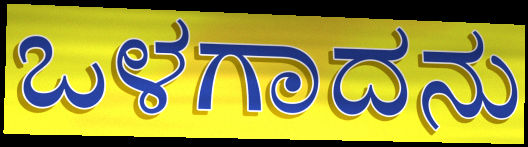
ಒಳಗಾದನು